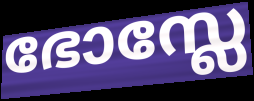
ഭോസ്ലേ